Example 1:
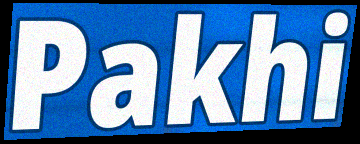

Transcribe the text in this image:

Pakhi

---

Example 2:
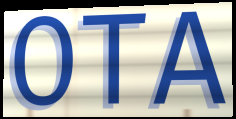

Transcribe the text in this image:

OTA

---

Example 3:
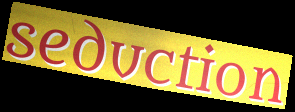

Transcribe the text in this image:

seduction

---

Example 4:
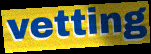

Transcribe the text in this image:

vetting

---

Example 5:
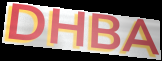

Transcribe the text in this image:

DHBA